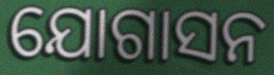
ଯୋଗାସନ